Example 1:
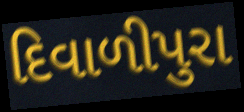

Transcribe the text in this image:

દિવાળીપુરા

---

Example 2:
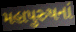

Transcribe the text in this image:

મહાપુરુષનાં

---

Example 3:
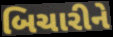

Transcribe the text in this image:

બિચારીને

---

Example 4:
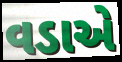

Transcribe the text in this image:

વડાએ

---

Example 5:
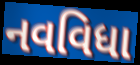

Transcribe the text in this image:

નવવિધા